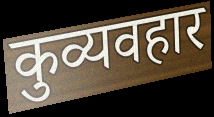
कुव्यवहार